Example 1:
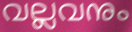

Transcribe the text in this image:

വല്ലവനും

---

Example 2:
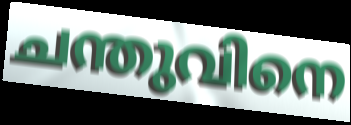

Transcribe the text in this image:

ചന്തുവിനെ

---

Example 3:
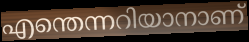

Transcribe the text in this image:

എന്തെന്നറിയാനാണ്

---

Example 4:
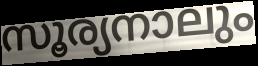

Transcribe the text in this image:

സൂര്യനാലും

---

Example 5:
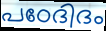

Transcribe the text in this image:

പഠേദിദം